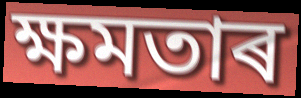
ক্ষমতাৰ